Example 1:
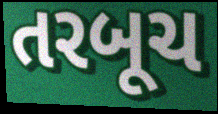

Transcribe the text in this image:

તરબૂચ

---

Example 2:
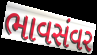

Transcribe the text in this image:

ભાવસંવર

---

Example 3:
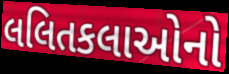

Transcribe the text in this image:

લલિતકલાઓનો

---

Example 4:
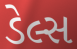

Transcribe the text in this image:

ડેલ્સ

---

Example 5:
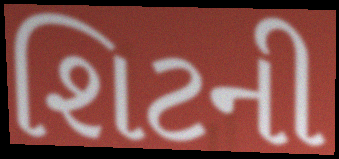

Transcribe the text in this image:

શિટની